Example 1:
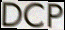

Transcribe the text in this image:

DCP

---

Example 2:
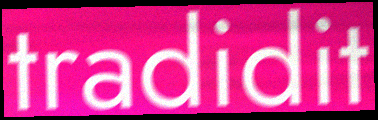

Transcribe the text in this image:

tradidit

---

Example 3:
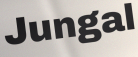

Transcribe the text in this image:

Jungal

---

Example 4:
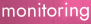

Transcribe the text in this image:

monitoring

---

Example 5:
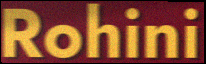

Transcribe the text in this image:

Rohini